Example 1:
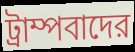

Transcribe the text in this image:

ট্রাম্পবাদের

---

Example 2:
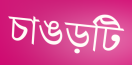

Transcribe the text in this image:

চাঙড়টি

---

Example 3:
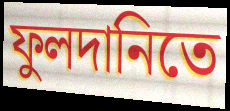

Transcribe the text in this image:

ফুলদানিতে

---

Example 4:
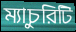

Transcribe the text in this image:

ম্যাচুরিটি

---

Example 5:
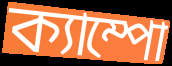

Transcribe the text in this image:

ক্যাম্পো